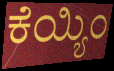
ಕೆಯ್ಯಿಂ